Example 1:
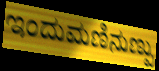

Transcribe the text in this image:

ಇಂದುಮಣಿನುಣ್ಪು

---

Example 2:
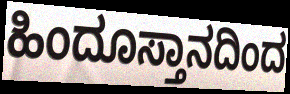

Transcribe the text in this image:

ಹಿಂದೂಸ್ತಾನದಿಂದ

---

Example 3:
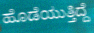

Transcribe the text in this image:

ಹೊಡೆಯುತ್ತಿದ್ದೆ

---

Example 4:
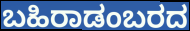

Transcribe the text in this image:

ಬಹಿರಾಡಂಬರದ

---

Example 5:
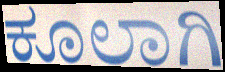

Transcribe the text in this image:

ಕೂಲಾಗಿ